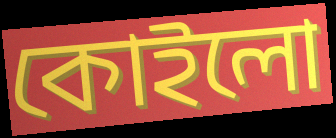
কোইলো